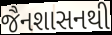
જૈનશાસનથી